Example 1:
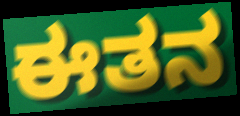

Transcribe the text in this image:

ಈತನ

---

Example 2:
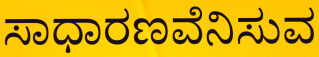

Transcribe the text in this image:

ಸಾಧಾರಣವೆನಿಸುವ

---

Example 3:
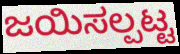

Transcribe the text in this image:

ಜಯಿಸಲ್ಪಟ್ಟ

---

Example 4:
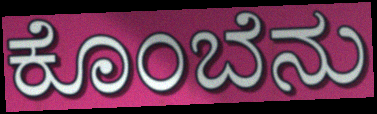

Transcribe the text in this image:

ಕೊಂಬೆನು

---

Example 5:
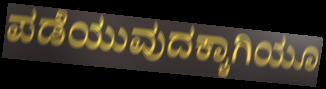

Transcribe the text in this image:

ಪಡೆಯುವುದಕ್ಕಾಗಿಯೂ